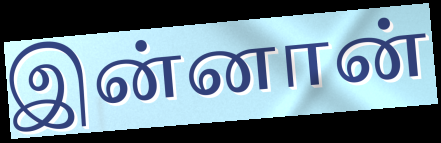
இன்னான்